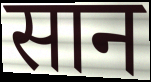
सान